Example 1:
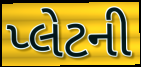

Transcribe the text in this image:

પ્લેટની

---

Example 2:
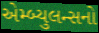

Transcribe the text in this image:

એમ્બ્યુલન્સનો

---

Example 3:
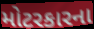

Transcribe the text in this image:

મોટરકારના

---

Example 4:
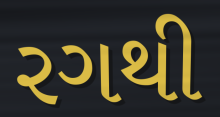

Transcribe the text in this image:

રગથી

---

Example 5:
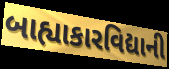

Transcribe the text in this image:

બાહ્યાકારવિદ્યાની